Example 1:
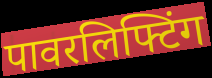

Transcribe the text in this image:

पावरलिफ्टिंग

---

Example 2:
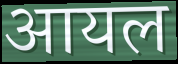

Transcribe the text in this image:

आयल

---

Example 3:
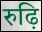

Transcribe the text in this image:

रुढ़ि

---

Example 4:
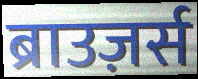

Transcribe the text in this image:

ब्राउज़र्स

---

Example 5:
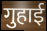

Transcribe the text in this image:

गुहाई